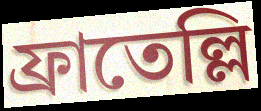
ফ্রাতেল্লি